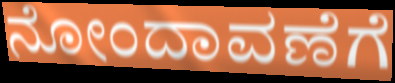
ನೋಂದಾವಣೆಗೆ